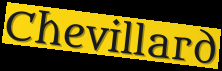
Chevillard